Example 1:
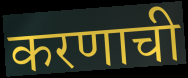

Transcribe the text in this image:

करणाची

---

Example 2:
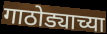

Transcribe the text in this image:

गाठोड्याच्या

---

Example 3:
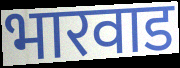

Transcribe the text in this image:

भारवाड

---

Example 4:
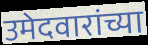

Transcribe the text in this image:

उमेदवारांच्या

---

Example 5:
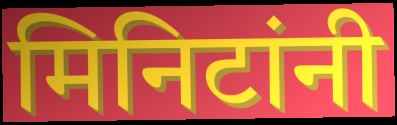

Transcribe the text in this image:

मिनिटांनी